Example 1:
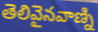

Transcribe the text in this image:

తెలివైనవాణ్ని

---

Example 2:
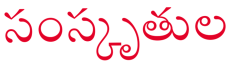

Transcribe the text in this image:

సంస్కృతుల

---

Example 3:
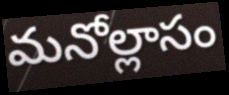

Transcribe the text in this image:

మనోల్లాసం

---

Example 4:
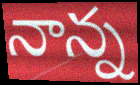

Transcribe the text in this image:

నాన్న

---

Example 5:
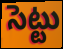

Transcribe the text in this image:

సెట్టు